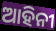
ଆହିନୀ